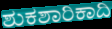
ಶುಕಶಾರಿಕಾದಿ